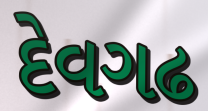
દેવગઢ